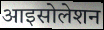
आइसोलेशन